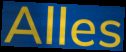
Alles